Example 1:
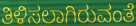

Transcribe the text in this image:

ತಿಳಿಸಲಾಗಿರುವಂತೆ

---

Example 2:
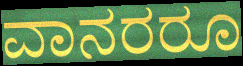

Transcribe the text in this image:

ವಾನರರೂ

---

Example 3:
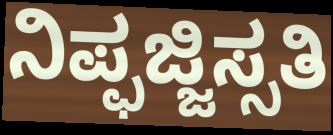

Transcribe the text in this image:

ನಿಪ್ಫಜ್ಜಿಸ್ಸತಿ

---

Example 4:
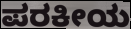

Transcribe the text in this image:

ಪರಕೀಯ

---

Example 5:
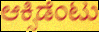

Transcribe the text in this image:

ಆಕ್ಸಿಡೆಂಟು